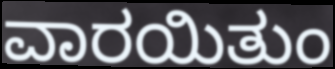
ವಾರಯಿತುಂ